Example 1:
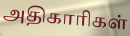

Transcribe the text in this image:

அதிகாரிகள்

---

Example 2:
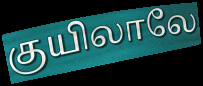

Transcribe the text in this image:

குயிலாலே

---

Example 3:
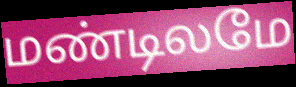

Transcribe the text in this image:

மண்டிலமே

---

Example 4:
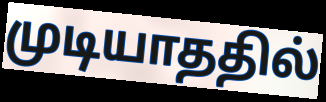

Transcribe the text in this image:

முடியாததில்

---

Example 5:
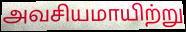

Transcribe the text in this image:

அவசியமாயிற்று